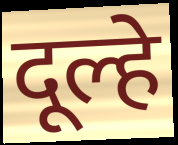
दूल्हे